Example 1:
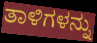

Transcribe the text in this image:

ತಾಳಿಗಳನ್ನು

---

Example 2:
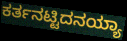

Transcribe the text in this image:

ಕರ್ತನಟ್ಟಿದನಯ್ಯಾ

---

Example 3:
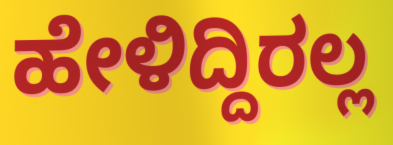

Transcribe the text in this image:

ಹೇಳಿದ್ದಿರಲ್ಲ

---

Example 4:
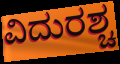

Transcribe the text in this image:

ವಿದುರಶ್ಚ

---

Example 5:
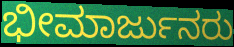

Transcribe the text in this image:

ಭೀಮಾರ್ಜುನರು